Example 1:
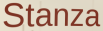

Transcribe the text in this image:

Stanza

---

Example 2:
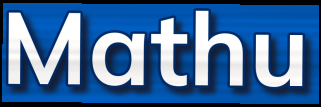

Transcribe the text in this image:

Mathu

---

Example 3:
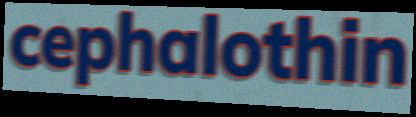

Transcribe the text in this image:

cephalothin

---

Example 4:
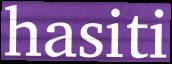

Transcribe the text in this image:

hasiti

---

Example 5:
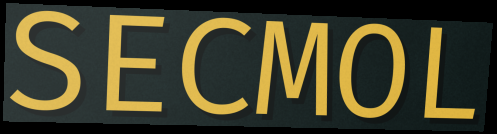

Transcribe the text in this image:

SECMOL